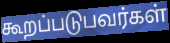
கூறப்படுபவர்கள்